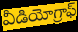
వీడియోగ్రాఫ్